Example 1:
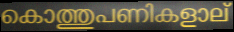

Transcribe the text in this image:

കൊത്തുപണികളാല്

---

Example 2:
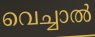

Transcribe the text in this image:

വെച്ചാൽ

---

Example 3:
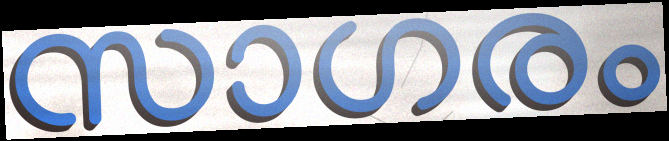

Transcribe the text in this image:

സാഗരം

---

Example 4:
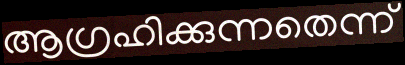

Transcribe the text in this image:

ആഗ്രഹിക്കുന്നതെന്ന്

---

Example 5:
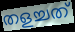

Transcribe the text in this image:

തളച്ചത്